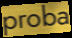
proba